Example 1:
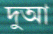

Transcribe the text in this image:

দুআ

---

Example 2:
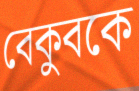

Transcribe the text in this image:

বেকুবকে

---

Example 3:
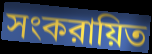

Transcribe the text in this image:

সংকরায়িত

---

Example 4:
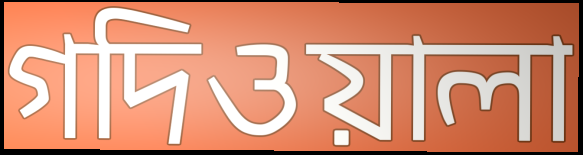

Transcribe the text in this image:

গদিওয়ালা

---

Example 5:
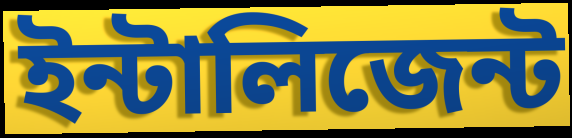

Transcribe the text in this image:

ইন্টালিজেন্ট